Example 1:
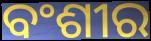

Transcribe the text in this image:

ବଂଶୀର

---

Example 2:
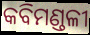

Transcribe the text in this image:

କବିମଣ୍ଡଳୀ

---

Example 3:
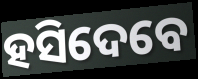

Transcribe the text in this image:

ହସିଦେବେ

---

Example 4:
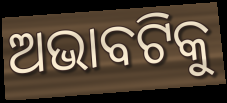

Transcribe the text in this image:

ଅଭାବଟିକୁ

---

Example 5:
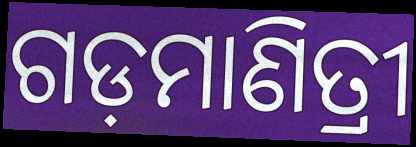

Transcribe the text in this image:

ଗଡ଼ମାଣିତ୍ରୀ